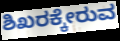
ಶಿಖರಕ್ಕೇರುವ